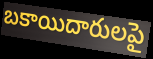
బకాయిదారులపై